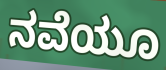
ನವೆಯೂ